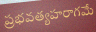
ప్రభవత్యహరాగమే